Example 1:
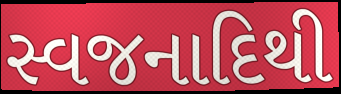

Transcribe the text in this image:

સ્વજનાદિથી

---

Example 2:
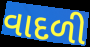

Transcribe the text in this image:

વાદળી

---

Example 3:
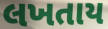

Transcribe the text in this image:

લખતાય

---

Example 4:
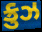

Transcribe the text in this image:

ક્રુઝ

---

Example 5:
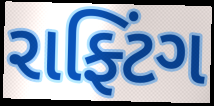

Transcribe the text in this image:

રાફ્ટિંગ